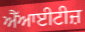
ਐੱਆਈਟੀਜ਼